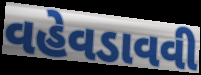
વહેવડાવવી